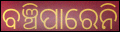
ବଞ୍ଚିପାରେନି